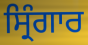
ਸ੍ਰਿੰਗਾਰ